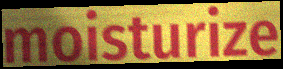
moisturize